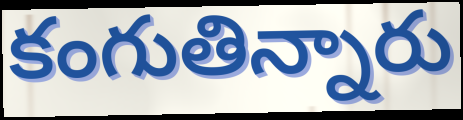
కంగుతిన్నారు